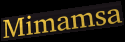
Mimamsa